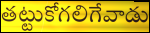
తట్టుకోగలిగేవాడు